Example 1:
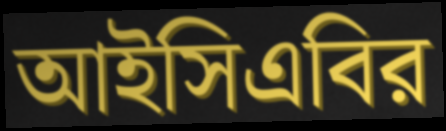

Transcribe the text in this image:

আইসিএবির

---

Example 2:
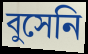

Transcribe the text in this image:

বুসেনি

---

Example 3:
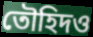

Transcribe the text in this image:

তৌহিদও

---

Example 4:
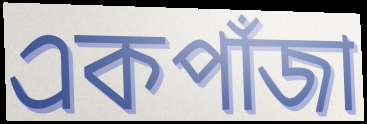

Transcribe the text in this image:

একপাঁজা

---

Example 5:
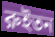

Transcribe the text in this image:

রুইতন